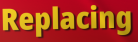
Replacing